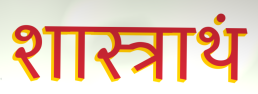
शास्त्राथं